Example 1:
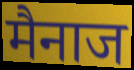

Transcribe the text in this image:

मैनाज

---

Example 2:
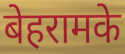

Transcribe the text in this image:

बेहरामके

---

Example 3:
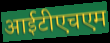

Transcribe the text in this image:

आईटीएचएम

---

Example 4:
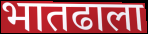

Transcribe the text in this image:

भातढाला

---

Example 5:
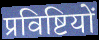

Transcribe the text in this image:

प्रविष्टियों